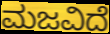
ಮಜವಿದೆ